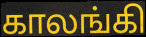
காலங்கி